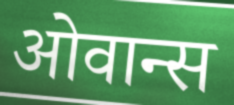
ओवान्स